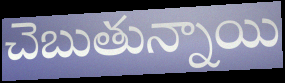
చెబుతున్నాయి